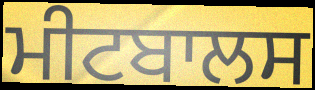
ਮੀਟਬਾਲਸ